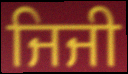
ਜਿਜੀ